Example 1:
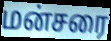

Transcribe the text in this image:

மன்சரை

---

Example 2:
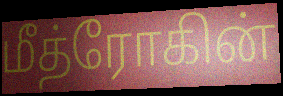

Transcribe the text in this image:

மீத்ரோகின்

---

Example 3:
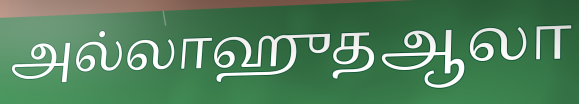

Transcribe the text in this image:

அல்லாஹுதஆலா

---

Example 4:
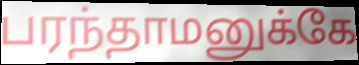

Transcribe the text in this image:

பரந்தாமனுக்கே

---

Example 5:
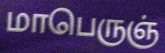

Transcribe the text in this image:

மாபெருஞ்